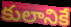
కులానికే